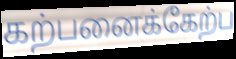
கற்பனைக்கேற்ப